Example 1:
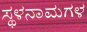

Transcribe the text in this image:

ಸ್ಥಳನಾಮಗಳ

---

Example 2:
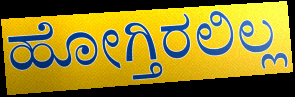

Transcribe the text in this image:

ಹೋಗ್ತಿರಲಿಲ್ಲ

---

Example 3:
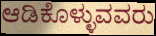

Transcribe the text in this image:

ಆಡಿಕೊಳ್ಳುವವರು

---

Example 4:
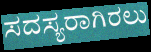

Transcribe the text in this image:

ಸದಸ್ಯರಾಗಿರಲು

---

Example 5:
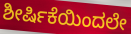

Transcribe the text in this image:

ಶೀರ್ಷಿಕೆಯಿಂದಲೇ